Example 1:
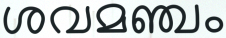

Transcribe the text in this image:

ശവമഞ്ചം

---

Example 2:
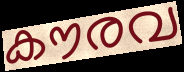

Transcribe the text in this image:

കൗരവ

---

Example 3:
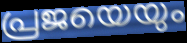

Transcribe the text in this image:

പ്രജയെയും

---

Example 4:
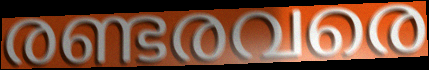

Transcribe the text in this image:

രണ്ടരവരെ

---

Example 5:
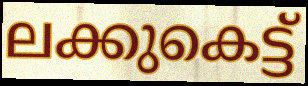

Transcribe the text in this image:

ലക്കുകെട്ട്